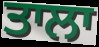
ਤਾਲਾ